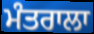
ਮੰਤਰਾਲਾ